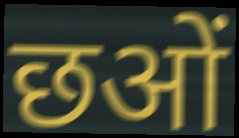
छओं